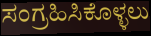
ಸಂಗ್ರಹಿಸಿಕೊಳ್ಳಲು